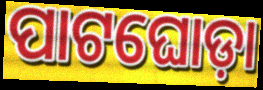
ପାଟଘୋଡ଼ା